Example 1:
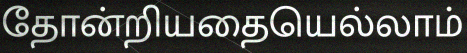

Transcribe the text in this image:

தோன்றியதையெல்லாம்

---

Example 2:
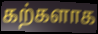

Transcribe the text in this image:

கற்களாக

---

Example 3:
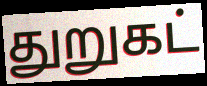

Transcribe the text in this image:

துறுகட்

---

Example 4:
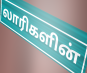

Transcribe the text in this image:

லாரிகளின்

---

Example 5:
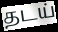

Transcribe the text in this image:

தடய்